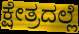
ಕ್ಷೇತ್ರದಲ್ಲೆ